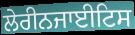
ਲੇਰੀਨਜਾਈਟਿਸ